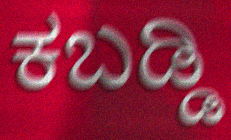
ಕಬಡ್ಡಿ